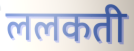
ललकती